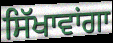
ਸਿੱਖਾਵਾਂਗਾ